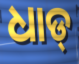
ଧାଡ୍